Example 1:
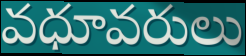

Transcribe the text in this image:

వధూవరులు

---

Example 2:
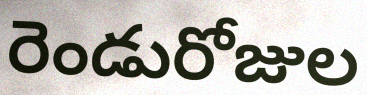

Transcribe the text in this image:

రెండురోజుల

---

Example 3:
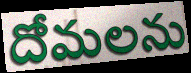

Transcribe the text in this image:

దోమలను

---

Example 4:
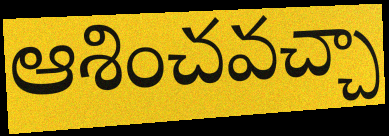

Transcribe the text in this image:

ఆశించవచ్చా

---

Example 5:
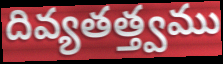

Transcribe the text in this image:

దివ్యతత్త్వము